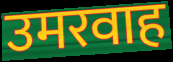
उमरवाह